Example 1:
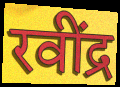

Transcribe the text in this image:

रवींद्र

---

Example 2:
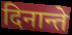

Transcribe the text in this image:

दिनान्ते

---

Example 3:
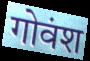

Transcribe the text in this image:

गोवंश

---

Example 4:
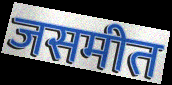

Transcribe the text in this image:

जसमीत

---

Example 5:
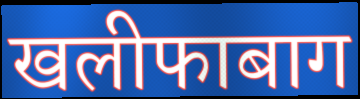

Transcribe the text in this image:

खलीफाबाग